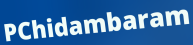
PChidambaram